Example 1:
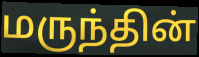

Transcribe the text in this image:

மருந்தின்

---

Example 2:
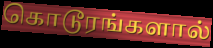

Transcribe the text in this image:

கொடூரங்களால்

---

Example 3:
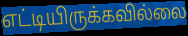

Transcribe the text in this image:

எட்டியிருக்கவில்லை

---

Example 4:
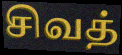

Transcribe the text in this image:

சிவத்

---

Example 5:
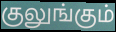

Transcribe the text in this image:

குலுங்கும்